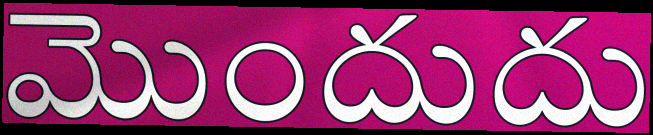
మొందుదు